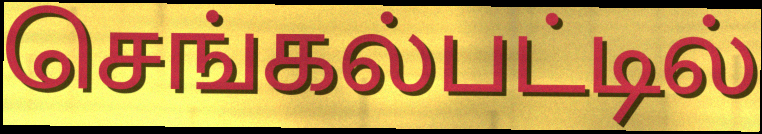
செங்கல்பட்டில்